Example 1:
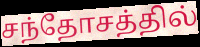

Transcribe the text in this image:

சந்தோசத்தில்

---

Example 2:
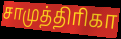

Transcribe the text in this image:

சாமுத்திரிகா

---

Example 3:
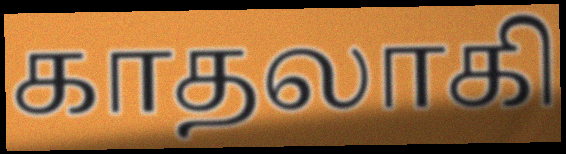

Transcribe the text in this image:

காதலாகி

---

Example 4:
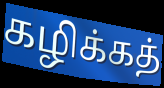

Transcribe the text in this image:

கழிக்கத்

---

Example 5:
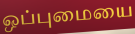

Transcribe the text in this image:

ஒப்புமையை